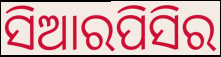
ସିଆରପିସିର